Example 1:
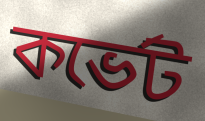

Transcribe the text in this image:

কর্ভেট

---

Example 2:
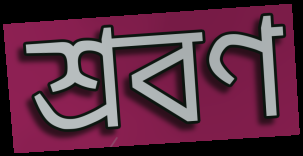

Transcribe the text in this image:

শ্রবণ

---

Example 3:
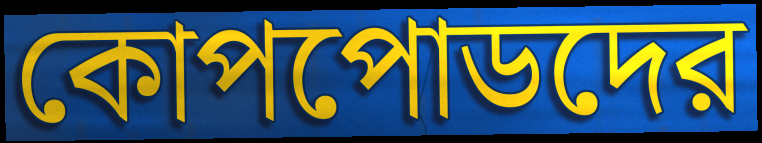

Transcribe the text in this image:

কোপপোডদের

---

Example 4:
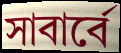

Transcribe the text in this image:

সাবার্বে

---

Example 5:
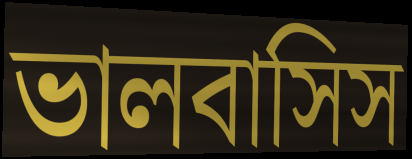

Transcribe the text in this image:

ভালবাসিস